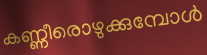
കണ്ണീരൊഴുക്കുമ്പോൾ